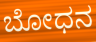
ಬೋಧನ